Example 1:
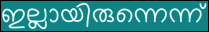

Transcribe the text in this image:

ഇല്ലായിരുന്നെന്ന്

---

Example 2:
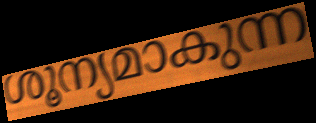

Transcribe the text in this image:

ശൂന്യമാകുന്ന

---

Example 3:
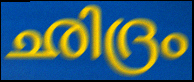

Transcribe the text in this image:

ഛിദ്രം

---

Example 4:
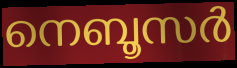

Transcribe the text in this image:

നെബൂസർ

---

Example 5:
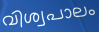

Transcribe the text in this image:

വിശ്വപാലം